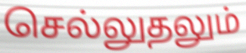
செல்லுதலும்